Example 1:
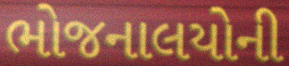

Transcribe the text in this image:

ભોજનાલયોની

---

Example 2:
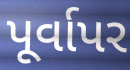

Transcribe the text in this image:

પૂર્વાપર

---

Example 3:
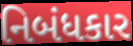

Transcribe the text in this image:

નિબંધકાર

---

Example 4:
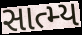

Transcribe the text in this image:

સાત્મ્ય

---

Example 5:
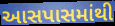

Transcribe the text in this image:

આસપાસમાંથી